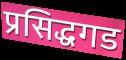
प्रसिद्धगड